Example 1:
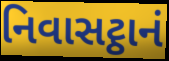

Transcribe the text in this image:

નિવાસટ્ઠાનં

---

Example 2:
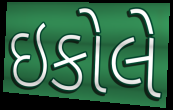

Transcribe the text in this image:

ઇકોલે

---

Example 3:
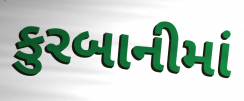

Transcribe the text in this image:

કુરબાનીમાં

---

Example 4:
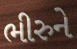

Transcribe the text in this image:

ભીરુને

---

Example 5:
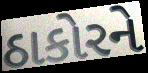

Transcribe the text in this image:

ઠાકોરને